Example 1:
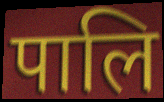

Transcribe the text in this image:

पालि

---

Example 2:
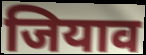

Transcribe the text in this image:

जियाव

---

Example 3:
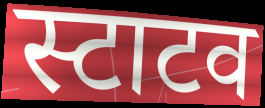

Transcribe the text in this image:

स्टाटव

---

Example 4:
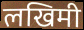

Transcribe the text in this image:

लखिमी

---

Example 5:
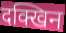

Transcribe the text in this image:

दक्खिन